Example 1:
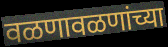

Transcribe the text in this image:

वळणावळणांच्या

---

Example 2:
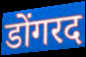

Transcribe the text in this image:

डोंगरद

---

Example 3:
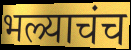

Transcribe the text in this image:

भल्याचंच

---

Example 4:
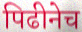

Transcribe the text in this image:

पिढीनेच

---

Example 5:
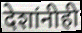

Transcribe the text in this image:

देशांनीही